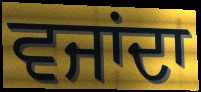
ਵਜਾਂਦਾ